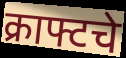
क्राफ्टचे